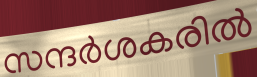
സന്ദർശകരിൽ